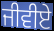
ਜੀਵੀਏ